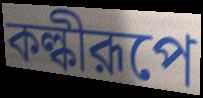
কল্কীরূপে